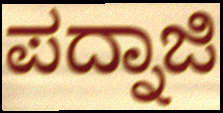
ಪದ್ನಾಜಿ